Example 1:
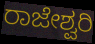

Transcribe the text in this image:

ರಾಜೇಶ್ವರಿ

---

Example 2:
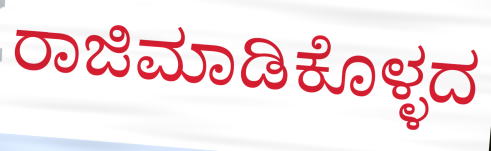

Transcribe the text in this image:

ರಾಜಿಮಾಡಿಕೊಳ್ಳದ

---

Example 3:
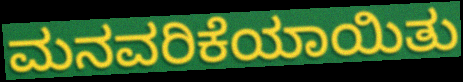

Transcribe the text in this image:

ಮನವರಿಕೆಯಾಯಿತು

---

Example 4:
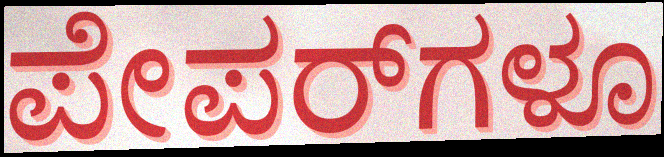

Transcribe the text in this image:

ಪೇಪರ್‌ಗಳೂ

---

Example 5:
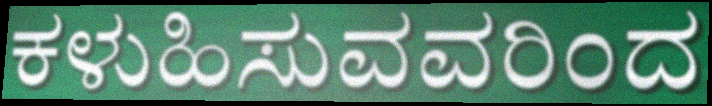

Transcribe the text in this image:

ಕಳುಹಿಸುವವರಿಂದ